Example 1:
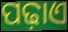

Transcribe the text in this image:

ପଢ଼ାଏ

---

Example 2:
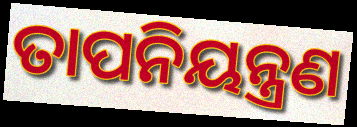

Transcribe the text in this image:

ତାପନିୟନ୍ତ୍ରଣ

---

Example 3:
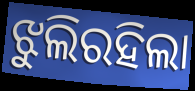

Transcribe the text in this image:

ଝୁଲିରହିଲା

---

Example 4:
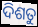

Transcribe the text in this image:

ଦିଶତୁ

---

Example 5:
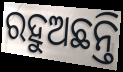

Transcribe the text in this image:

ରହୁଅଛନ୍ତି